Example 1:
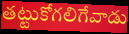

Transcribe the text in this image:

తట్టుకోగలిగేవాడు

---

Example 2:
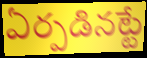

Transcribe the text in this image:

ఏర్పడినట్టే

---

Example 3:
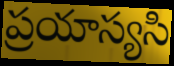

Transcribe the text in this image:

ప్రయాస్యసి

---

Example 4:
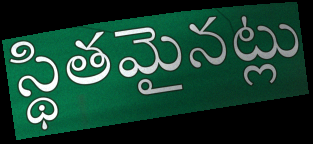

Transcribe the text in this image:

స్థితమైనట్లు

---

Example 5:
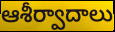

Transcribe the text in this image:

ఆశీర్వాదాలు